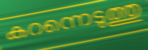
കറന്നെടുത്തു